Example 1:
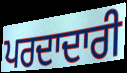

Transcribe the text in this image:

ਪਰਦਾਦਾਰੀ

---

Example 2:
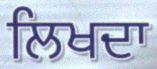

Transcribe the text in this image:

ਲਿਖਦਾ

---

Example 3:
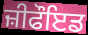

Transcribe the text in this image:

ਜ਼ੀਫੌਇਡ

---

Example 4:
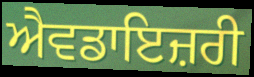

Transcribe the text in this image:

ਐਵਡਾਇਜ਼ਰੀ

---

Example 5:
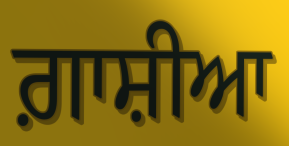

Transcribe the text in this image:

ਗ਼ਾਸ਼ੀਆ